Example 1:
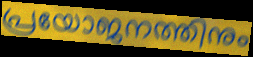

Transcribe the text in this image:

പ്രയോജനത്തിനും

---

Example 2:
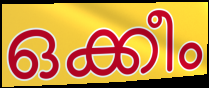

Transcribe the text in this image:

ഒക്കീം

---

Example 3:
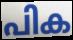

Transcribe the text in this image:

പിക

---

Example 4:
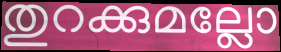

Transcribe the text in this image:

തുറക്കുമല്ലോ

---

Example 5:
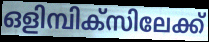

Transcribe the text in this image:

ഒളിമ്പിക്സിലേക്ക്